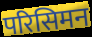
परिसिमन